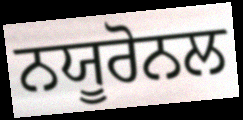
ਨਯੂਰੋਨਲ